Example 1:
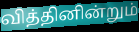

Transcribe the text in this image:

வித்தினின்றும்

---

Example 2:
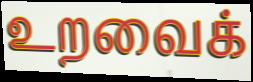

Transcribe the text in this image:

உறவைக்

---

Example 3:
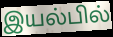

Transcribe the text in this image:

இயல்பில்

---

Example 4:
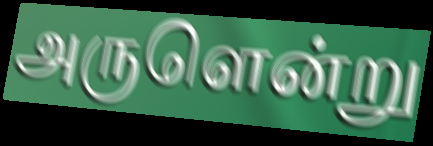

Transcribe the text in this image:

அருளென்று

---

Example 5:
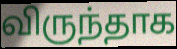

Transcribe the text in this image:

விருந்தாக